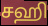
சஹி